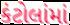
કંટોલાંમાં